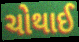
ચોથાઈ